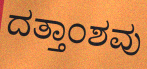
ದತ್ತಾಂಶವು